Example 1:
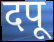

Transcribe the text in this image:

दपू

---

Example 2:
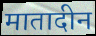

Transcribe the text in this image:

मातादीन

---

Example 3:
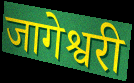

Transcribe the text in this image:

जागेश्वरी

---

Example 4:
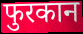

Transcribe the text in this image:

फुरकान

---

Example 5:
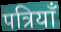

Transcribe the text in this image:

पत्रियाँ